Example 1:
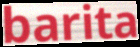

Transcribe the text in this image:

barita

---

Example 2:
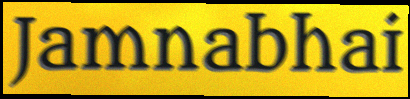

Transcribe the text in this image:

Jamnabhai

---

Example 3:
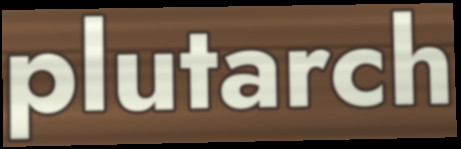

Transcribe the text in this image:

plutarch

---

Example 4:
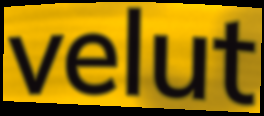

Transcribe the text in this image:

velut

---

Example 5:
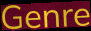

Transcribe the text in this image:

Genre